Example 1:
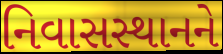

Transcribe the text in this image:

નિવાસસ્થાનને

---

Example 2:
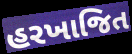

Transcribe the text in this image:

હરખાજિત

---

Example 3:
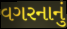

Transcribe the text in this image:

વગરનાનું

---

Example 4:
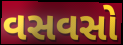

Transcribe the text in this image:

વસવસો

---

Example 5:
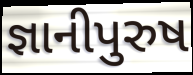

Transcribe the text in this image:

જ્ઞાનીપુરુષ